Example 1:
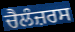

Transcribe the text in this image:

ਚੈਲੰਜ਼ਰਸ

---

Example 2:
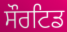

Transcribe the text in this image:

ਸੌਰਟਿਡ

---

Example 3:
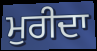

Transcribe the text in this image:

ਮੁਰੀਦਾ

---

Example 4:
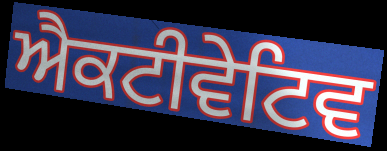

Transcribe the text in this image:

ਐਕਟੀਵੇਟਿਵ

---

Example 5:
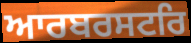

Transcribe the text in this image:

ਆਰਬਰਸਟਰਿ